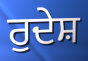
ਰੁਦੇਸ਼